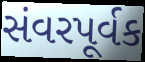
સંવરપૂર્વક